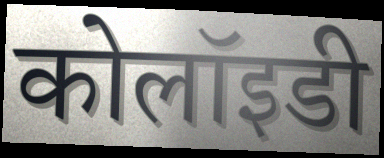
कोलॉइडी